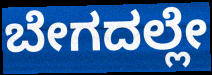
ಬೇಗದಲ್ಲೇ